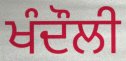
ਖੰਦੌਲੀ